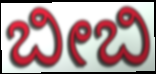
ಬೀಬಿ